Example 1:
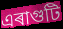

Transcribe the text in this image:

এৰাগুটি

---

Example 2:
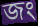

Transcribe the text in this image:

জং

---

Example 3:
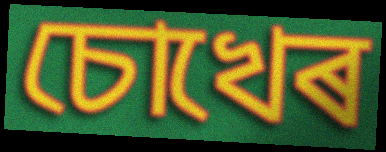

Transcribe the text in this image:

চোখেৰ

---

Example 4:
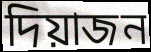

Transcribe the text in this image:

দিয়াজন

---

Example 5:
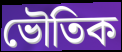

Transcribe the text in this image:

ভৌতিক